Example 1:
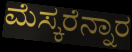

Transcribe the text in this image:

ಮೆಸ್ಕರೆನ್ನಾರ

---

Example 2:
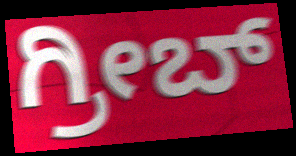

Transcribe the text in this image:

ಗ್ರೀಬ್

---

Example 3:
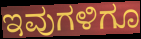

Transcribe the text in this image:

ಇವುಗಳಿಗೂ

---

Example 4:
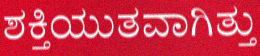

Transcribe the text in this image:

ಶಕ್ತಿಯುತವಾಗಿತ್ತು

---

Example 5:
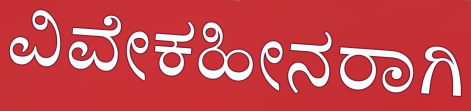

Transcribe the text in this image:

ವಿವೇಕಹೀನರಾಗಿ